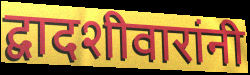
द्वादशीवारांनी